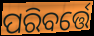
ପରିବର୍ତ୍ତେ